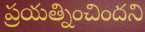
ప్రయత్నించిందని